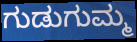
ಗುಡುಗುಮ್ಮ